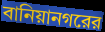
বানিয়ানগরের